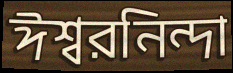
ঈশ্বরনিন্দা